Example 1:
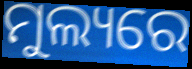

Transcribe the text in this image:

ମୁଲ୍ୟରେ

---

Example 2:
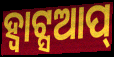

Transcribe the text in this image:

ହ୍ବାଟ୍ସଆପ୍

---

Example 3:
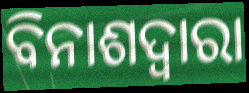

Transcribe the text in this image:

ବିନାଶଦ୍ଵାରା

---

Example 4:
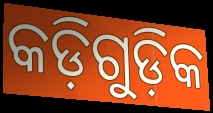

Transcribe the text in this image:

କଡ଼ିଗୁଡ଼ିକ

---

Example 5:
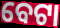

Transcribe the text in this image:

ବେଟା